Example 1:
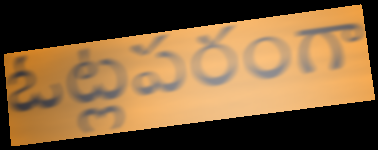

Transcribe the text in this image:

ఓట్లపరంగా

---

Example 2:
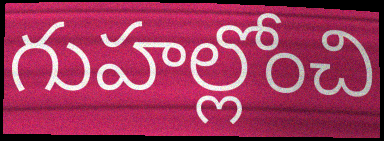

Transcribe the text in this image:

గుహల్లోంచి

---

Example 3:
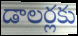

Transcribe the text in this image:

డాలర్లకు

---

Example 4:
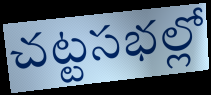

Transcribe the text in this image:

చట్టసభల్లో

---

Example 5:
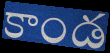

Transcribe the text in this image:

కాండ